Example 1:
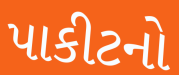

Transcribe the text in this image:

પાકીટનો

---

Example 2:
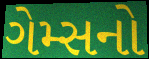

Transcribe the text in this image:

ગેમ્સનો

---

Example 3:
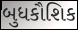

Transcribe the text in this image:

બુધકૌશિક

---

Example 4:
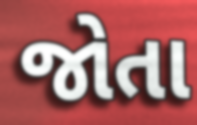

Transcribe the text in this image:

જોતા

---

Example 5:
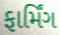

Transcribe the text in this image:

ફાર્મિંગ